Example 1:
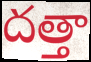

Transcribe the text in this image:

దత్తా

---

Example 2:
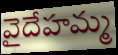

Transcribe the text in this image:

వైదేహమ్మ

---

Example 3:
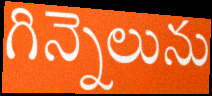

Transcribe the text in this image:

గిన్నెలును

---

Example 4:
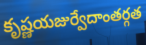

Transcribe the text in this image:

కృష్ణయజుర్వేదాంతర్గత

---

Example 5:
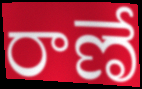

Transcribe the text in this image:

రాణే